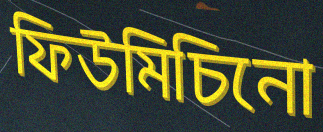
ফিউমিচিনো